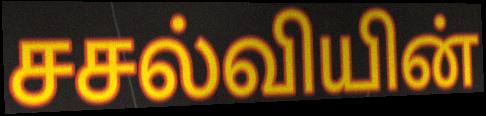
சசல்வியின்